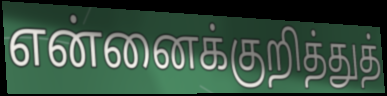
என்னைக்குறித்துத்